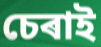
চেৰাই